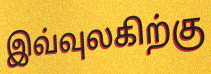
இவ்வுலகிற்கு